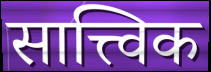
सात्त्विक